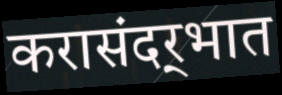
करासंदर्भात